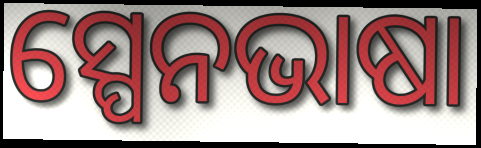
ସ୍ପେନଭାଷା